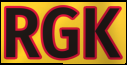
RGK